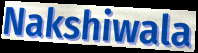
Nakshiwala